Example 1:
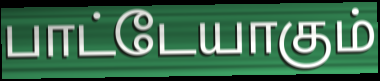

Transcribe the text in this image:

பாட்டேயாகும்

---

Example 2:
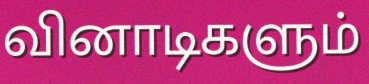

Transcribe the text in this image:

வினாடிகளும்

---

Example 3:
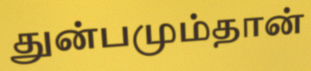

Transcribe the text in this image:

துன்பமும்தான்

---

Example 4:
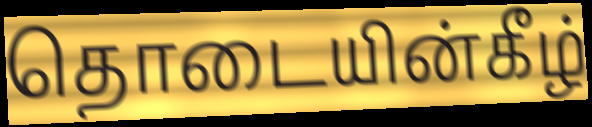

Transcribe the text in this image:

தொடையின்கீழ்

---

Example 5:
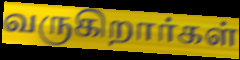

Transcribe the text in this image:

வருகிறார்கள்